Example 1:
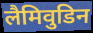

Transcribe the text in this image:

लैमिवुडिन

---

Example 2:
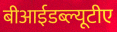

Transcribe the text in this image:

बीआईडब्ल्यूटीए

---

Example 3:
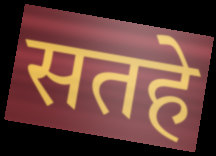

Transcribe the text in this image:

सतहे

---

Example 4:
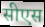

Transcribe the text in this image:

सीएस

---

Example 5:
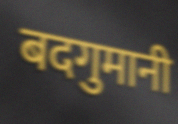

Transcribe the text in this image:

बदगुमानी